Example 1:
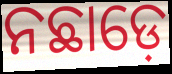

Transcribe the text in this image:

ନଛାଡ଼େ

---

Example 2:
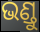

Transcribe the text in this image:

ଭଣ୍ଡୁ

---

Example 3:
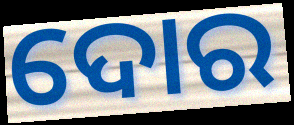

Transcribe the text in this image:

ଦୋର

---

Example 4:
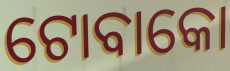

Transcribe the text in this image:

ଟୋବାକୋ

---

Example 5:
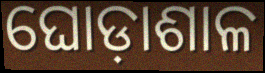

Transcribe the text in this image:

ଘୋଡ଼ାଶାଳ